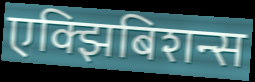
एक्झिबिशन्स